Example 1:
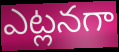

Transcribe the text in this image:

ఎట్లనగా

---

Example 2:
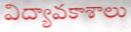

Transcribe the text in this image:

విద్యావకాశాలు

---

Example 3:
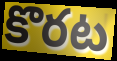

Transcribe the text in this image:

కొరట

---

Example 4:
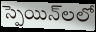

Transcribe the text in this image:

స్పెయిన్‌లలో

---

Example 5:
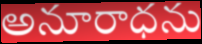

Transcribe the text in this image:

అనూరాధను